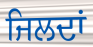
ਜਿਲਦਾਂ